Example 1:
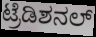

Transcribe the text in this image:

ಟ್ರೆಡಿಶನಲ್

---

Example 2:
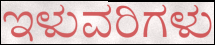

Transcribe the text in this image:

ಇಳುವರಿಗಳು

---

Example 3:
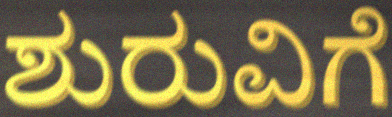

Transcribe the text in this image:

ಶುರುವಿಗೆ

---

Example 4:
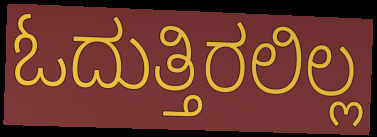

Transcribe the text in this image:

ಓದುತ್ತಿರಲಿಲ್ಲ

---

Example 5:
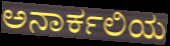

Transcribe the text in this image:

ಅನಾರ್ಕಲಿಯ